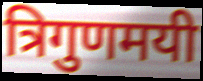
त्रिगुणमयी